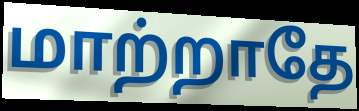
மாற்றாதே